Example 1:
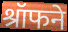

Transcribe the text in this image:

श्रॉफने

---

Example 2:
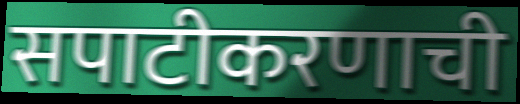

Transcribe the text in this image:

सपाटीकरणाची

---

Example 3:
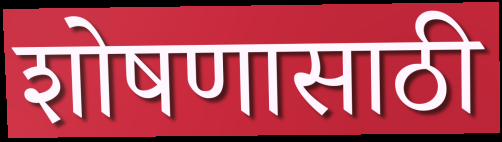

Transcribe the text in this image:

शोषणासाठी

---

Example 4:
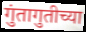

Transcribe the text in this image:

गुंतागुतीच्या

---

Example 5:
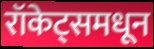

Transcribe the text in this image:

रॉकेट्समधून